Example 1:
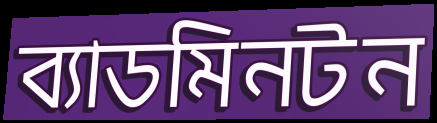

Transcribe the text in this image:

ব্যাডমিনটন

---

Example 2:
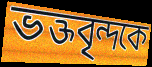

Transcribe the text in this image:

ভক্তবৃন্দকে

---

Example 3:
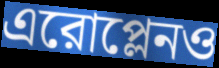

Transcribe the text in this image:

এরোপ্লেনও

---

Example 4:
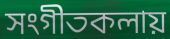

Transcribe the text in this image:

সংগীতকলায়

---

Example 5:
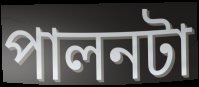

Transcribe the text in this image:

পালনটা